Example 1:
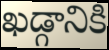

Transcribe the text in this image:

ఖడ్గానికి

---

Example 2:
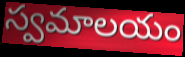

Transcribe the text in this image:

స్వమాలయం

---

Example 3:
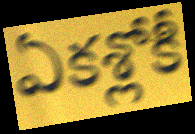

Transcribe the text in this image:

ఏకశ్లోకీ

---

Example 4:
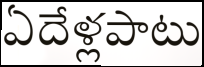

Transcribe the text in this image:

ఏదేళ్లపాటు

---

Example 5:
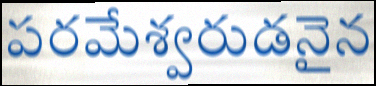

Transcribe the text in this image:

పరమేశ్వరుడనైన